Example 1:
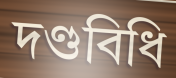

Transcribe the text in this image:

দণ্ডবিধি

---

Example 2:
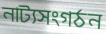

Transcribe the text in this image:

নাট্যসংগঠন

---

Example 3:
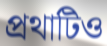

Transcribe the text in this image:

প্রথাটিও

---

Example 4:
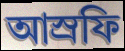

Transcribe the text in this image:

আস্রফি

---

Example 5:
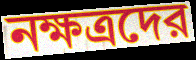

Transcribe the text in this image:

নক্ষত্রদের